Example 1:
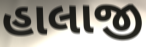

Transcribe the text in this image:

હાલાજી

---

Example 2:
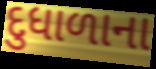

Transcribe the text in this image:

દુધાળાના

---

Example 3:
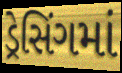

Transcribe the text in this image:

ડ્રેસિંગમાં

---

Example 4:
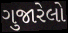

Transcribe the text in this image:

ગુજારેલો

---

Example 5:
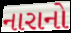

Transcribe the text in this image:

નારાનો